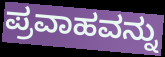
ಪ್ರವಾಹವನ್ನು